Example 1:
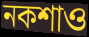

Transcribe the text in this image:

নকশাও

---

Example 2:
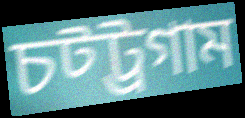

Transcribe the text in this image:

চট্ট্রগাম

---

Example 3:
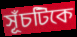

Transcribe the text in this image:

সূঁচটিকে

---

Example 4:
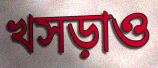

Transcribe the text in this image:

খসড়াও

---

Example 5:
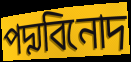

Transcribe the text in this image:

পদ্মবিনোদ